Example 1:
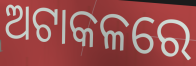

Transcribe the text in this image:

ଅଟାକଳରେ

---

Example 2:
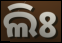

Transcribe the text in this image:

ଲିଃ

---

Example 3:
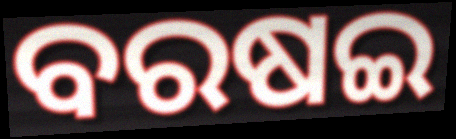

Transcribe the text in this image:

ବରଷଇ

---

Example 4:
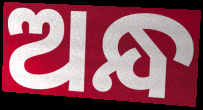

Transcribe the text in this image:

ଅନ୍ଧ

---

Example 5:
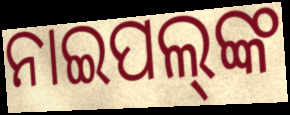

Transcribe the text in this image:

ନାଇପଲ୍‍ଙ୍କ